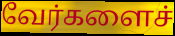
வேர்களைச்